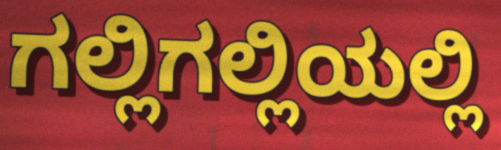
ಗಲ್ಲಿಗಲ್ಲಿಯಲ್ಲಿ